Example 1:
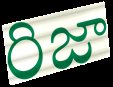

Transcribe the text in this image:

రిజా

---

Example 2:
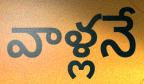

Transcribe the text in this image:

వాళ్లనే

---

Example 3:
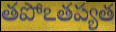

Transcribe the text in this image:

తపోఽతప్యత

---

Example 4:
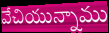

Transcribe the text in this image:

వేచియున్నాము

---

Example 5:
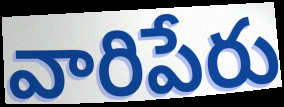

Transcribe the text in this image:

వారిపేరు